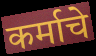
कर्माचे